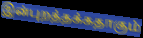
இன்புறத்தக்கதாகும்